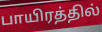
பாயிரத்தில்